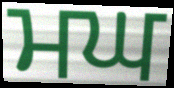
ਮਘ